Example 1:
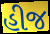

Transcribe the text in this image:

હીજ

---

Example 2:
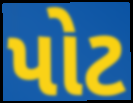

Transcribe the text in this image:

પોટ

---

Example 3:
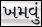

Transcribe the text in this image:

ખમવું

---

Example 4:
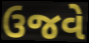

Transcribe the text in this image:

ઉજવે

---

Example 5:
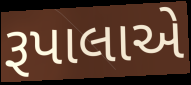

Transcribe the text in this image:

રૂપાલાએ